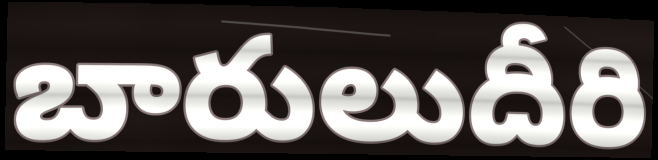
బారులుదీరి